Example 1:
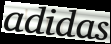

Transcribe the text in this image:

adidas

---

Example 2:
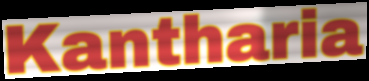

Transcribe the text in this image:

Kantharia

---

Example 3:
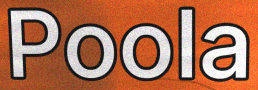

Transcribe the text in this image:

Poola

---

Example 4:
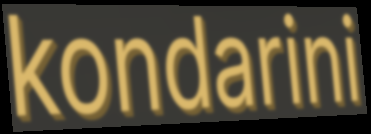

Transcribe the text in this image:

kondarini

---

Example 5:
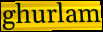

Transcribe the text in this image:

ghurlam